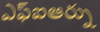
ఎఫ్ఐఆర్ను